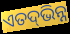
ଏତଦ୍‌ଭିନ୍ନ